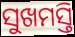
ସୁଖମସ୍ତି